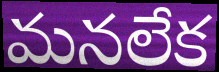
మనలేక